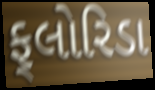
ફ્‌લોરિડા